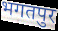
भगतपुर